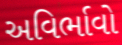
અવિર્ભાવો